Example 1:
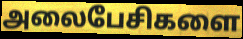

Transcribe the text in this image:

அலைபேசிகளை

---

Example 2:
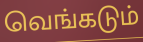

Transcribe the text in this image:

வெங்கடும்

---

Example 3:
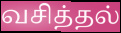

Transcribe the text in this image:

வசித்தல்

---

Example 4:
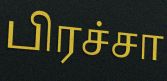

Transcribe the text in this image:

பிரச்சா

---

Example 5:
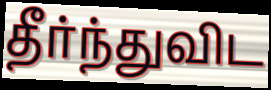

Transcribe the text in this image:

தீர்ந்துவிட